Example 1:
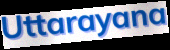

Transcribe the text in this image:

Uttarayana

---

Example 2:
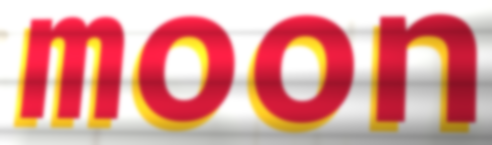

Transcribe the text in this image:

moon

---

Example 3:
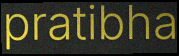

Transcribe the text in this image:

pratibha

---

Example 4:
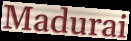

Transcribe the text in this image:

Madurai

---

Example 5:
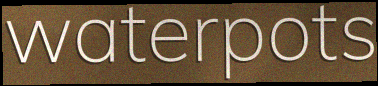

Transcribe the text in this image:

waterpots